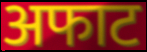
अफाट